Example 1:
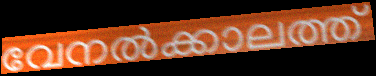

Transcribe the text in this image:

വേനൽക്കാലത്ത്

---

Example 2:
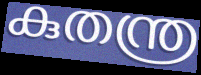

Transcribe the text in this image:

കുതന്ത്ര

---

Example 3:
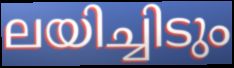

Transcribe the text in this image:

ലയിച്ചിടും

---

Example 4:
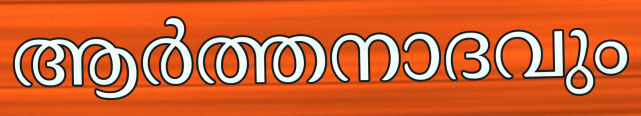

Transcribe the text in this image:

ആർത്തനാദവും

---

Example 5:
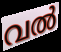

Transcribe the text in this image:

വൽ